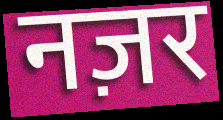
नज़र